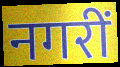
नगरीं